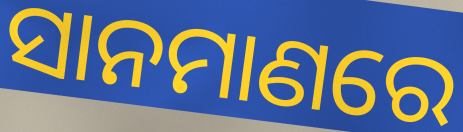
ସାନମାଣରେ